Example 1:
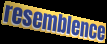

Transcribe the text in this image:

resemblence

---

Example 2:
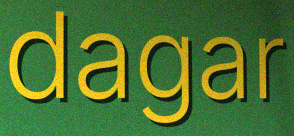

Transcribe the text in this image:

dagar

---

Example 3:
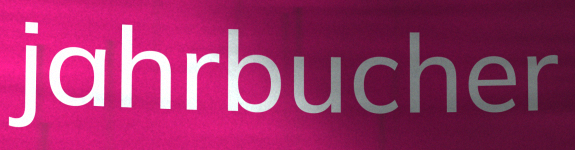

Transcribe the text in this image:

jahrbucher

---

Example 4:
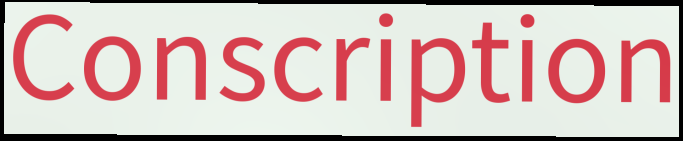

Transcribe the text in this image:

Conscription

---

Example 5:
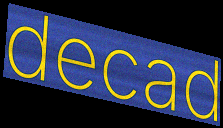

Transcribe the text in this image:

decad